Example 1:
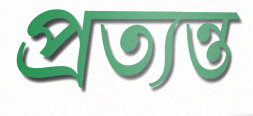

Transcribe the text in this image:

প্রত্যন্ত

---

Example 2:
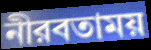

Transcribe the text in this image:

নীরবতাময়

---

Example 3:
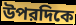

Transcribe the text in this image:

উপরদিকে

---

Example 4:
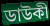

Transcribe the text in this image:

ডাউকী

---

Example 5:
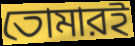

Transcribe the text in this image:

তোমারই